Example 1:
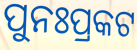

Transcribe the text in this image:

ପୁନଃପ୍ରକଟ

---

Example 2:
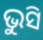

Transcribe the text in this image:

ଭୁସି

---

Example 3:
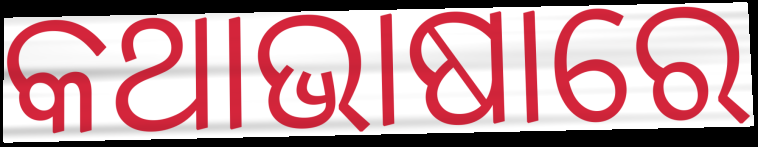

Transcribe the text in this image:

କଥାଭାଷାରେ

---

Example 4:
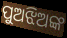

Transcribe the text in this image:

ପୁଅଝିଅଙ୍କ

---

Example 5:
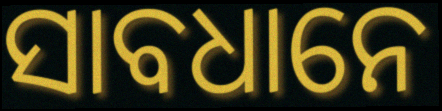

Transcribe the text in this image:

ସାବଧାନେ